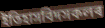
ইতিহাসবিদসকলৰ